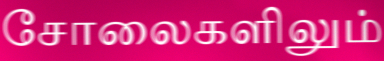
சோலைகளிலும்